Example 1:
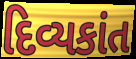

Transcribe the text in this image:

દિવ્યકાંત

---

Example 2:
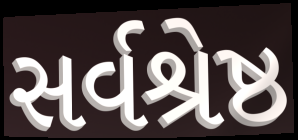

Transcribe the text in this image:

સર્વશ્રેષ્ઠ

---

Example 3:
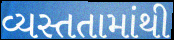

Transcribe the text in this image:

વ્યસ્તતામાંથી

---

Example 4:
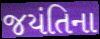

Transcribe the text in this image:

જયંતિના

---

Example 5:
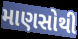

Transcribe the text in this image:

માણસોથી